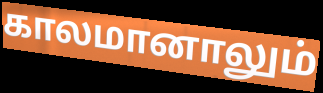
காலமானாலும்